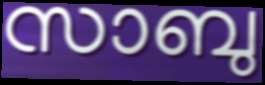
സാബു